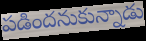
పడిందనుకున్నాడు